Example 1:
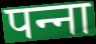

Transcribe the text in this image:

पन्‍ना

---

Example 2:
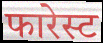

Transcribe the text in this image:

फारेस्‍ट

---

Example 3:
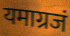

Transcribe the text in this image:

यमाग्रजं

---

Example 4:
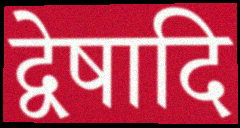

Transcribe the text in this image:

द्वेषादि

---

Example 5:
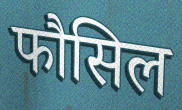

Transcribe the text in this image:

फौसिल